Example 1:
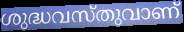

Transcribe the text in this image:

ശുദ്ധവസ്തുവാണ്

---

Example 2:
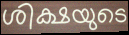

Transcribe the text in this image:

ശിക്ഷയുടെ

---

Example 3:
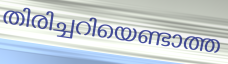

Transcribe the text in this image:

തിരിച്ചറിയെണ്ടാത്ത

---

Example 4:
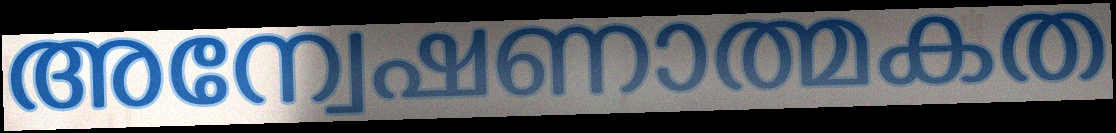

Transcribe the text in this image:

അന്വേഷണാത്മകത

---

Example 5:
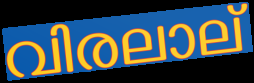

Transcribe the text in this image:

വിരലാല്